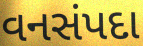
વનસંપદા